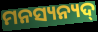
ମନସ୍ୟନ୍ୟଦ୍